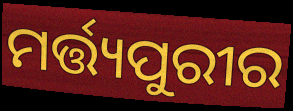
ମର୍ତ୍ତ୍ୟପୁରୀର